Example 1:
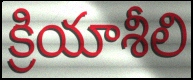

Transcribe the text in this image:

క్రియాశీలి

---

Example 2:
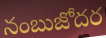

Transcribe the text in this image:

నంబుజోదర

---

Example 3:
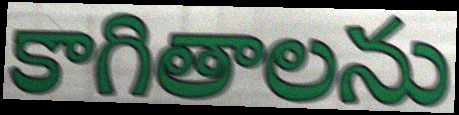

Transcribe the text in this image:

కాగితాలను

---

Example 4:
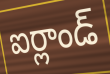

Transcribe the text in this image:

ఐర్లాండ్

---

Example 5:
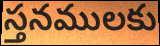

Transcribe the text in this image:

స్తనములకు